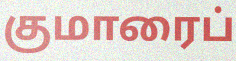
குமாரைப்